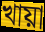
খায়া